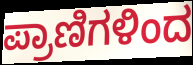
ಪ್ರಾಣಿಗಳಿಂದ